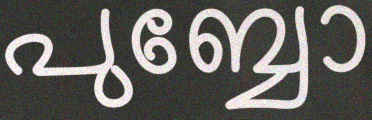
പുബ്ബോ